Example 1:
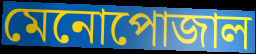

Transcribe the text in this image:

মেনোপোজাল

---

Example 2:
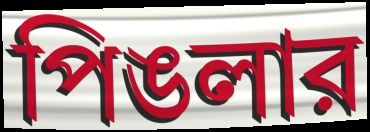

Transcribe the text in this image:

পিঙলার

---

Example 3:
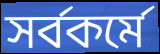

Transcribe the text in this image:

সর্বকর্মে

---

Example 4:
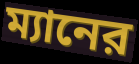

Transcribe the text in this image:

ম্যানের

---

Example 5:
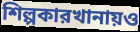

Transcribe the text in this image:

শিল্পকারখানায়ও